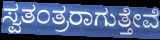
ಸ್ವತಂತ್ರರಾಗುತ್ತೇವೆ